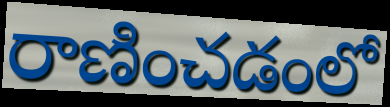
రాణించడంలో